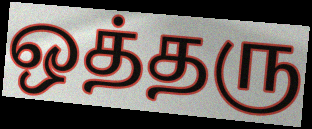
ஒத்தரு